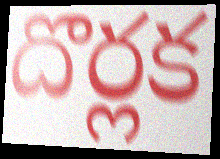
దొర్లక